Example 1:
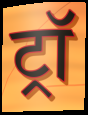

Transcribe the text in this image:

ट्रॉ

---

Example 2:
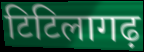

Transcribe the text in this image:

टिटिलागढ़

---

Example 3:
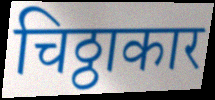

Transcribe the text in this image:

चिठ्ठाकार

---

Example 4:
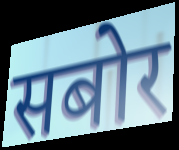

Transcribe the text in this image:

सबोर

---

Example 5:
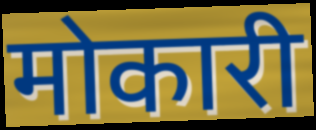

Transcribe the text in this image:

मोकारी